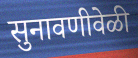
सुनावणीवेळी